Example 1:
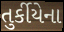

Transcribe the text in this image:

તુર્કીયેના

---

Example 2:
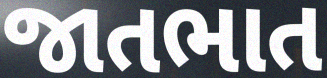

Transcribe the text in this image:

જાતભાત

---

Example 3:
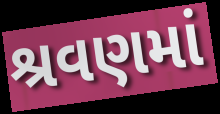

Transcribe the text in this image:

શ્રવણમાં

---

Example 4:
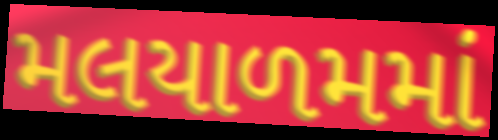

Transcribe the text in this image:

મલયાળમમાં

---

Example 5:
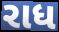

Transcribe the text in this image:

રાધ